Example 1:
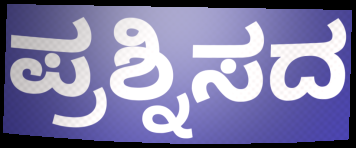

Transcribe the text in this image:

ಪ್ರಶ್ನಿಸದ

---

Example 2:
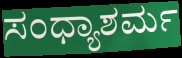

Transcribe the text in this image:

ಸಂಧ್ಯಾಶರ್ಮ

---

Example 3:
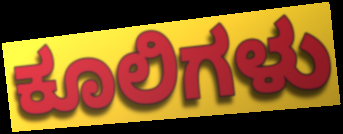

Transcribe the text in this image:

ಕೂಲಿಗಳು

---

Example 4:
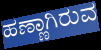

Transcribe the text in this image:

ಹಣ್ಣಾಗಿರುವ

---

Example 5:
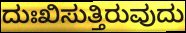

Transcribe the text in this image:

ದುಃಖಿಸುತ್ತಿರುವುದು